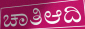
ಚಾತಿಆದಿ